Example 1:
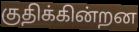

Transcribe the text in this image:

குதிக்கின்றன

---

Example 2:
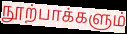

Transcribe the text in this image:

நூற்பாக்களும்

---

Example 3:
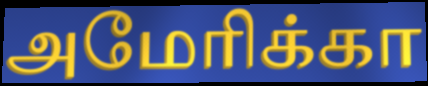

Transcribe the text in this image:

அமேரிக்கா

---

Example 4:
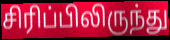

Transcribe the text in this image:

சிரிப்பிலிருந்து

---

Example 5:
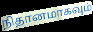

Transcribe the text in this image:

நிதானமாகவும்